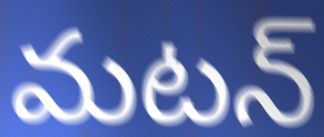
మటన్